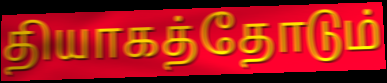
தியாகத்தோடும்